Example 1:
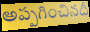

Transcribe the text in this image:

అప్పగించినదీ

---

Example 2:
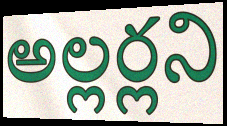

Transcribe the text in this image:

అల్లర్లని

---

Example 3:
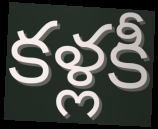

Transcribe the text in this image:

కళ్లకీ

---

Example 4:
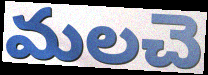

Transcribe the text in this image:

మలచె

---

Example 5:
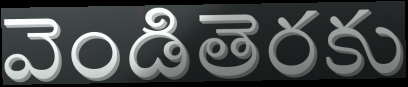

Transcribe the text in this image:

వెండితెరకు